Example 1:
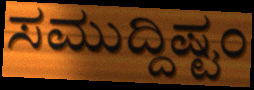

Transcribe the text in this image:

ಸಮುದ್ದಿಷ್ಟಂ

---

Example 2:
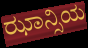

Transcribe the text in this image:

ಝಾನ್ಸಿಯ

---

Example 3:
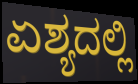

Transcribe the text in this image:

ಏಶ್ಯದಲ್ಲಿ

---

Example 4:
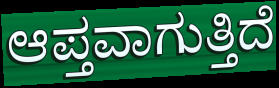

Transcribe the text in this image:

ಆಪ್ತವಾಗುತ್ತಿದೆ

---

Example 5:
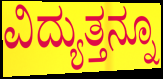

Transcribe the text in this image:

ವಿದ್ಯುತ್ತನ್ನೂ